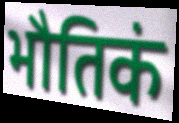
भौतिकं